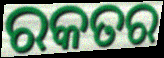
ରକତର